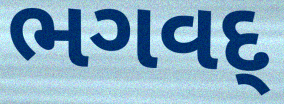
ભગવદ્